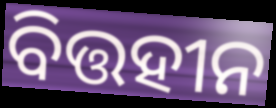
ବିତ୍ତହୀନ